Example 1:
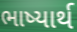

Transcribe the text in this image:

ભાષ્યાર્થ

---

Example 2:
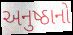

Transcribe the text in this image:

અનુષ્ઠાનો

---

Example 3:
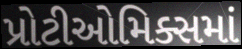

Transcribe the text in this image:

પ્રોટીઓમિક્સમાં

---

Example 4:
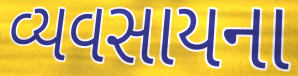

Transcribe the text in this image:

વ્યવસાયના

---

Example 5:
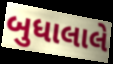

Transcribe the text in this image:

બુધાલાલે